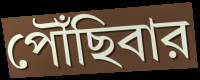
পৌঁছিবার